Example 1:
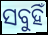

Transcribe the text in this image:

ସବୁହିଁ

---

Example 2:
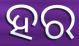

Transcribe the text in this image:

ହର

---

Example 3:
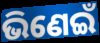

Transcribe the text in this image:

ଭିଣେଇଁ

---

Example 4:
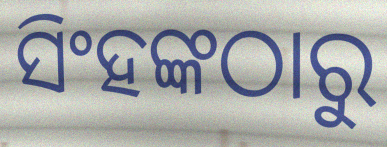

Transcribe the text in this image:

ସିଂହଙ୍କଠାରୁ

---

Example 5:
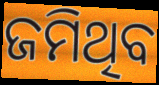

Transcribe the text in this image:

ଜମିଥିବ